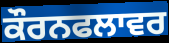
ਕੌਰਨਫਲਾਵਰ